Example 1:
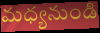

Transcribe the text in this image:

మధ్యనుండి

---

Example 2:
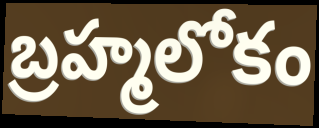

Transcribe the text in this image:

బ్రహ్మలోకం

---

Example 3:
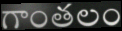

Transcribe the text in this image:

గాంతలం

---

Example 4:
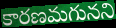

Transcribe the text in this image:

కారణమగునని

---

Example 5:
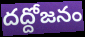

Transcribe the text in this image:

దద్దోజనం